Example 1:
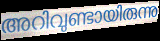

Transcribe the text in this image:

അറിവുണ്ടായിരുന്നു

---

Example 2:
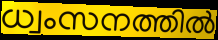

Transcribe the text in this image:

ധ്വംസനത്തിൽ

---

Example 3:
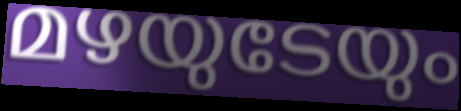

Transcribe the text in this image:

മഴയുടേയും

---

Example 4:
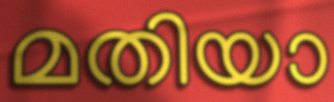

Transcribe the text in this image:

മതിയാ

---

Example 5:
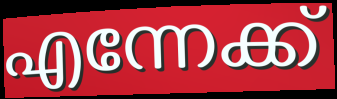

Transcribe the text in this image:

എന്നേക്ക്